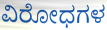
ವಿರೋಧಗಳ